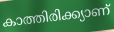
കാത്തിരിക്ക്യാണ്